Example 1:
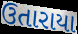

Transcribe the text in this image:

ઉતારાયા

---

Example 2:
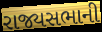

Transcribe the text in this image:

રાજ્યસભાની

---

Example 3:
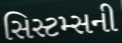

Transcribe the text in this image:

સિસ્ટમ્સની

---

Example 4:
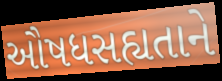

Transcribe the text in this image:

ઔષધસહ્યતાને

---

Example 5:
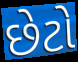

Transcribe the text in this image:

છેટો